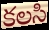
కలసి